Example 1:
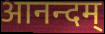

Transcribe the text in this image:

आनन्दम्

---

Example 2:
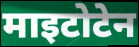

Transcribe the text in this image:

माइटोटेन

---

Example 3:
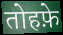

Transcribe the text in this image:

तोहफ़े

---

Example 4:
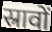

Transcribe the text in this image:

स्रावों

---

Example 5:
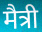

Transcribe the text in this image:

मैत्री